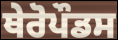
ਥੇਰੋਪੌਡਸ